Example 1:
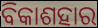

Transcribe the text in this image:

ବିକାଶହାର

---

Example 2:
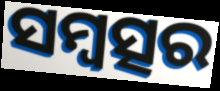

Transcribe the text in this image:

ସମ୍ବତ୍ସର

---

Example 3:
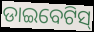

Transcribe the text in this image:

ଡାଇବେଟିସ୍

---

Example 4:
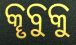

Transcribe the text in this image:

କୄବୁକୁ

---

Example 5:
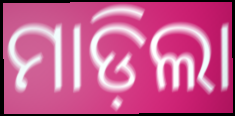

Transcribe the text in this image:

ମାଡ଼ିଲା